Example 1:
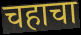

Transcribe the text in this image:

चहाचा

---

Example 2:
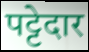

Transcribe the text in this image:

पट्टेदार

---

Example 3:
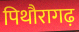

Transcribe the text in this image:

पिथौरागढ़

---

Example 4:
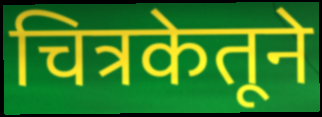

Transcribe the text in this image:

चित्रकेतूने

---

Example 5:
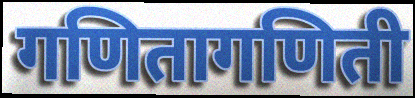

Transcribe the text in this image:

गणितागणिती